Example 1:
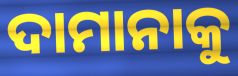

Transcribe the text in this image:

ଦାମାନାକୁ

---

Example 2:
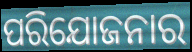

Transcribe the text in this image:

ପରିଯୋଜନାର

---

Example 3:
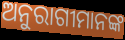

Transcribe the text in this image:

ଅନୁରାଗୀମାନଙ୍କ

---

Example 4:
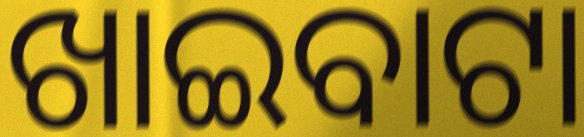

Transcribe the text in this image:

ଖାଇବାଟା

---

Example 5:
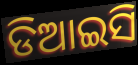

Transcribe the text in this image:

ଡିଆଇସି